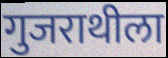
गुजराथीला